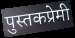
पुस्तकप्रेमी